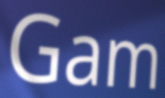
Gam